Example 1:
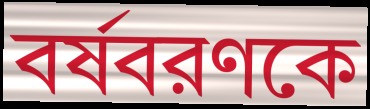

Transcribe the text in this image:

বর্ষবরণকে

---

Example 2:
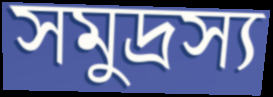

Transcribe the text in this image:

সমুদ্রস্য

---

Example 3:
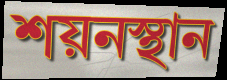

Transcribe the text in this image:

শয়নস্থান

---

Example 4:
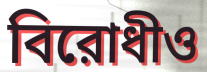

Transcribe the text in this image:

বিরোধীও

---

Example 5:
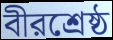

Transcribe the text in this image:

বীরশ্রেষ্ঠ